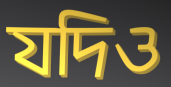
যদিও